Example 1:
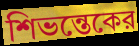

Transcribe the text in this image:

শিভন্তেকের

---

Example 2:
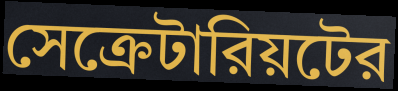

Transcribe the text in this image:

সেক্রেটারিয়টের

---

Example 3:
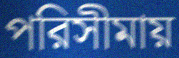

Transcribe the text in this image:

পরিসীমায়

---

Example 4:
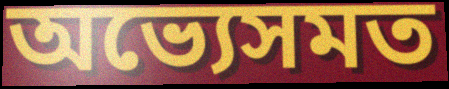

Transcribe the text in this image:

অভ্যেসমত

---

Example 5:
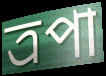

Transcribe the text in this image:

ত্রপা